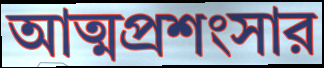
আত্মপ্রশংসার